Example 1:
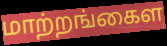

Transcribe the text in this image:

மாற்றங்கைள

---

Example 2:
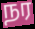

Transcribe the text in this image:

நர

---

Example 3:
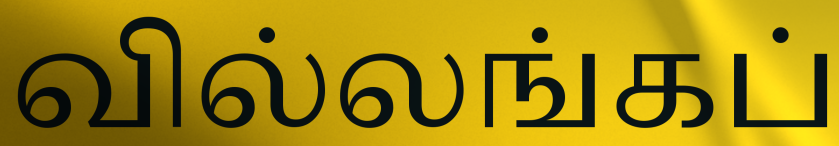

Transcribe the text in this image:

வில்லங்கப்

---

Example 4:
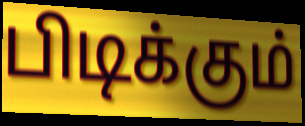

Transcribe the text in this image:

பிடிக்கும்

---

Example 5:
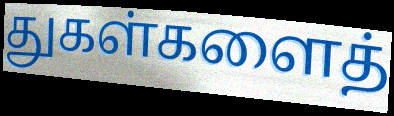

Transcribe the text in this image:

துகள்களைத்